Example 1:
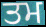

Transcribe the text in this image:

ਤਮ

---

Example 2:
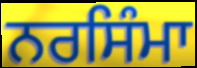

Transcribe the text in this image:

ਨਰਸਿੰਮਾ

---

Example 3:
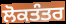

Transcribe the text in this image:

ਲੋਕਤੰਤਰ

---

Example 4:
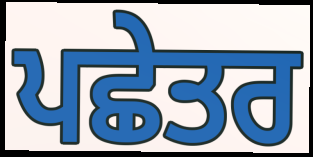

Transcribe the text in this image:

ਪਛੇਤਰ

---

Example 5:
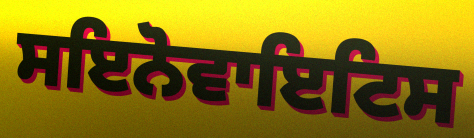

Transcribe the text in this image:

ਸਇਨੋਵਾਇਟਿਸ